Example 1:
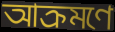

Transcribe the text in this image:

আক্রমণে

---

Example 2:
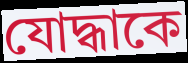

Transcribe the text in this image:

যোদ্ধাকে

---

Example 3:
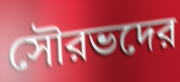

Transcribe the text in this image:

সৌরভদের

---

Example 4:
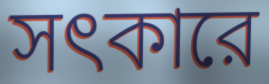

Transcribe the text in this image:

সৎকারে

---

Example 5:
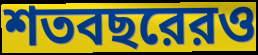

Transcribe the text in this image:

শতবছরেরও